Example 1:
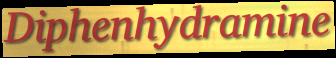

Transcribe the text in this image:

Diphenhydramine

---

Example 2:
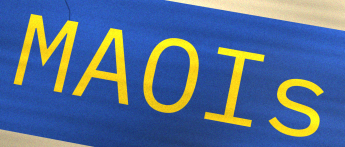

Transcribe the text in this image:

MAOIs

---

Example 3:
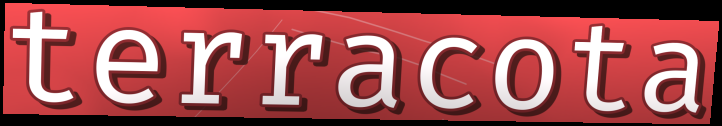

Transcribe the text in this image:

terracota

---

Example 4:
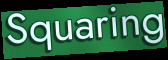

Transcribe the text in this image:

Squaring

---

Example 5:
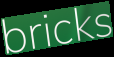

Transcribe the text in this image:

bricks